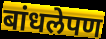
बांधलेपण